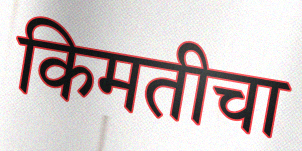
किमतीचा